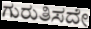
ಗುರುತಿಸದೇ